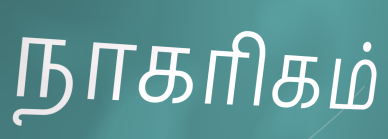
நாகரிகம்